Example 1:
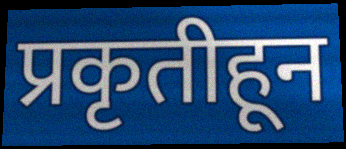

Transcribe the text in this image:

प्रकृतीहून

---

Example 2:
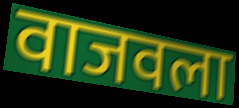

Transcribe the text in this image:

वाजवला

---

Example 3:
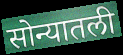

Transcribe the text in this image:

सोन्यातली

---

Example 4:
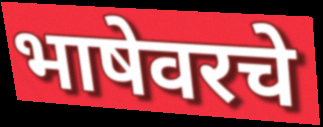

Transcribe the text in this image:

भाषेवरचे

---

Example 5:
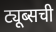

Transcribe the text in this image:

ट्यूब्सची